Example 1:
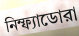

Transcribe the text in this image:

নিম্ফ্যাডোরা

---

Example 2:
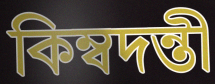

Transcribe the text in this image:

কিম্বদন্তী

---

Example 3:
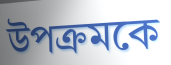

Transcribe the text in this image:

উপক্রমকে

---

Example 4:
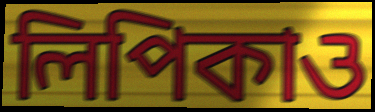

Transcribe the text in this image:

লিপিকাও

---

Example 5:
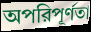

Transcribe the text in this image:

অপরিপূর্ণতা